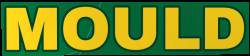
MOULD